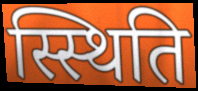
स्स्थिति